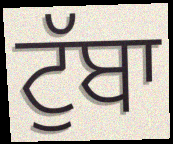
ਟੁੱਬਾ